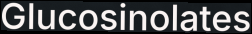
Glucosinolates